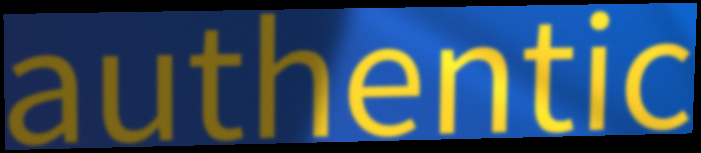
authentic